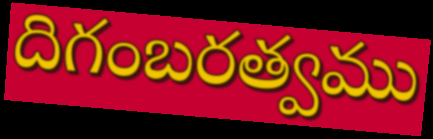
దిగంబరత్వము